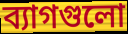
ব্যাগগুলো